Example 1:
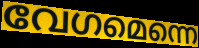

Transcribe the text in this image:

വേഗമെന്നെ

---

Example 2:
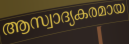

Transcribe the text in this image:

ആസ്വാദ്യകരമായ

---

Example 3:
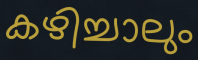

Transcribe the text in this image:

കഴിച്ചാലും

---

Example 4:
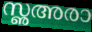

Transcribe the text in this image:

സൢഅരാ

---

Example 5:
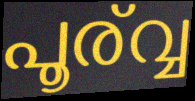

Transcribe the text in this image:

പൂര്വ്വ